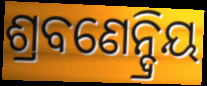
ଶ୍ରବଣେନ୍ଦ୍ରିୟ